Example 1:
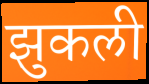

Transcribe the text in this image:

झुकली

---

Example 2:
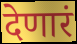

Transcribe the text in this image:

देणारं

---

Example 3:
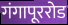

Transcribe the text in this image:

गंगापूररोड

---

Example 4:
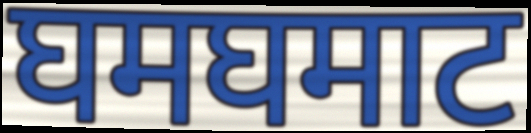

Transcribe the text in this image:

घमघमाट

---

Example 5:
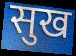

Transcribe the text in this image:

सुख